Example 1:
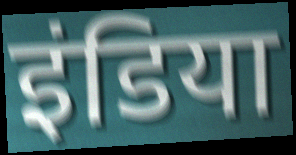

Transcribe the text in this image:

इंडिया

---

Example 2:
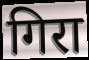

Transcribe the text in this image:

गिरा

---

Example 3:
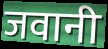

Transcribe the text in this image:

जवानी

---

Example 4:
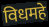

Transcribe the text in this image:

विधमहे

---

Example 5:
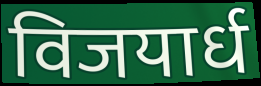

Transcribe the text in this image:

विजयार्ध